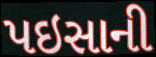
પઇસાની